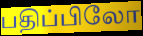
பதிப்பிலோ